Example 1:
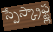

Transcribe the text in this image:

స్పేస్క్రాఫ్ట్ల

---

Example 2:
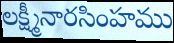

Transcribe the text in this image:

లక్ష్మీనారసింహము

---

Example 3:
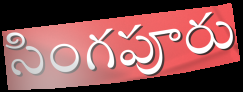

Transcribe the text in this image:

సింగపూరు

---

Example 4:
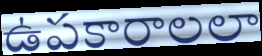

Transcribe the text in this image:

ఉపకారాలలా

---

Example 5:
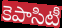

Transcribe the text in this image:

కెపాసిటీ